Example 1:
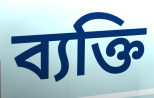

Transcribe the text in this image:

ব্যক্তি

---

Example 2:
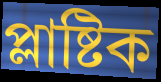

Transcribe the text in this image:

প্লাষ্টিক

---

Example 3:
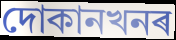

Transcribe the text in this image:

দোকানখনৰ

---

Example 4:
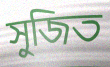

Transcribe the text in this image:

সুজিত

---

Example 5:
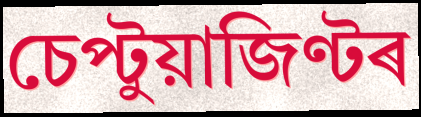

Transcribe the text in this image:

চেপ্টুয়াজিণ্টৰ